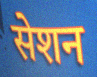
सेशन